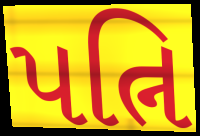
પત્નિ